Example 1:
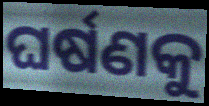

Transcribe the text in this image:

ଘର୍ଷଣକୁ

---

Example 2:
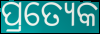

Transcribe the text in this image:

ପ୍ରତ୍ୟେକ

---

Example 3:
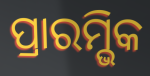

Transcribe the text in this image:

ପ୍ରାରମ୍ଭିକ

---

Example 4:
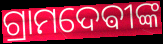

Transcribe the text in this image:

ଗ୍ରାମଦେଵୀଙ୍କ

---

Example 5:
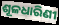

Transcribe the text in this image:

ଶୂଳଧାରିଣୀ